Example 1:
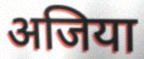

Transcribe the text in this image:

अजिया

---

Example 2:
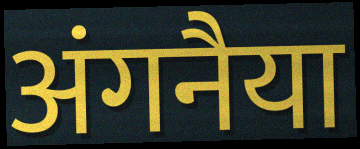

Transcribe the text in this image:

अंगनैया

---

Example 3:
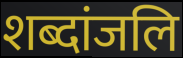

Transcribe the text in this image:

शब्दांजलि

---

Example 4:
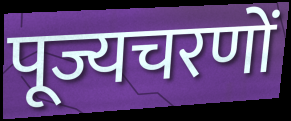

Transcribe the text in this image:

पूज्यचरणों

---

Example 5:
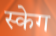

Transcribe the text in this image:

स्केग